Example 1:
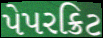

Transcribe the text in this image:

પેપરક્રિટ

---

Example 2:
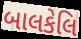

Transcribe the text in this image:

બાલકેલિ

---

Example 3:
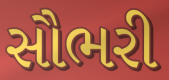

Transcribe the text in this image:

સૌભરી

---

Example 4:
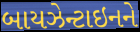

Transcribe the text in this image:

બાયઝેન્ટાઇનને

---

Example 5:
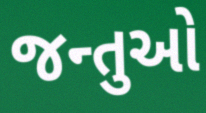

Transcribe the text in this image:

જન્તુઓ